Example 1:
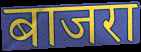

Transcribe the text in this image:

बाजरा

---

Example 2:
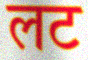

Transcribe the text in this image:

लट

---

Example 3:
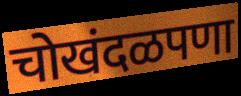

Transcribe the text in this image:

चोखंदळपणा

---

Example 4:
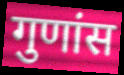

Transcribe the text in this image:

गुणांस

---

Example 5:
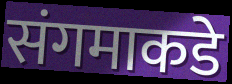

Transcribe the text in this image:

संगमाकडे